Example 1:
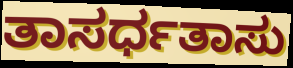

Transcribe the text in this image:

ತಾಸರ್ಧತಾಸು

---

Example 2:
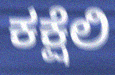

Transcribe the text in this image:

ಕಕ್ಷೆಲಿ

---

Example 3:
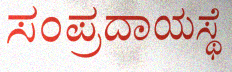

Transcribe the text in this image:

ಸಂಪ್ರದಾಯಸ್ಥೆ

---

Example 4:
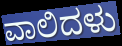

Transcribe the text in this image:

ವಾಲಿದಳು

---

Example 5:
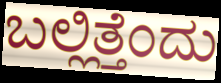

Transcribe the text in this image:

ಬಲ್ಲಿತ್ತೆಂದು